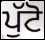
ਪੁੱਟੋ